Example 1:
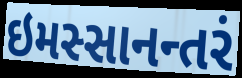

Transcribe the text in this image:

ઇમસ્સાનન્તરં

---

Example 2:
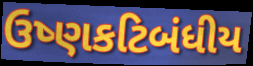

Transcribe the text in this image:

ઉષ્ણકટિબંધીય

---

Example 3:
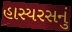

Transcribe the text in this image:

હાસ્યરસનું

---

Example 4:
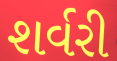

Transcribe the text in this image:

શર્વરી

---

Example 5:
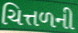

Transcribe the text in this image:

ચિત્તળની